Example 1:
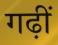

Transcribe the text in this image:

गढ़ीं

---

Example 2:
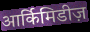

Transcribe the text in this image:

आर्किमिडीज़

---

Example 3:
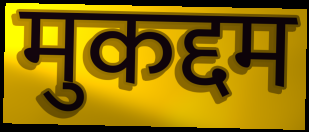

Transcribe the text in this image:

मुकद्दम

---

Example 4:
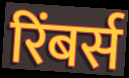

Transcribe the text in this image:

रिंबर्स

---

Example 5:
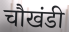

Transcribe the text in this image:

चौखंडी